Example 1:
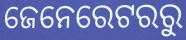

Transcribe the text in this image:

ଜେନେରେଟରରୁ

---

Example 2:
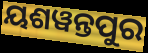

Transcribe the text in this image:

ୟଶୱନ୍ତପୁର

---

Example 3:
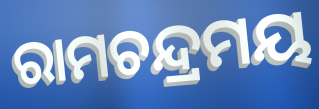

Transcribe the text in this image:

ରାମଚନ୍ଦ୍ରମୟ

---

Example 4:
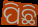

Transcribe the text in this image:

ପିଛି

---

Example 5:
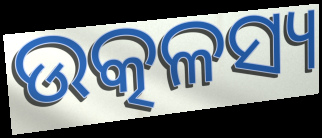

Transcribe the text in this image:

ଉତ୍କଳସ୍ୟ